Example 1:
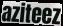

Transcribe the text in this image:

aziteez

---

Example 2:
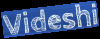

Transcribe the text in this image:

Videshi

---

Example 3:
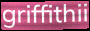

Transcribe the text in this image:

griffithii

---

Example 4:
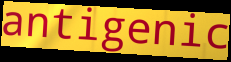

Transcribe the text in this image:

antigenic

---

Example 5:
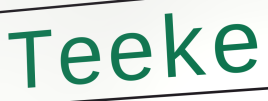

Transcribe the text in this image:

Teeke